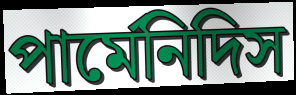
পার্মেনিদিস